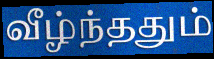
வீழ்ந்ததும்